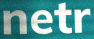
netr